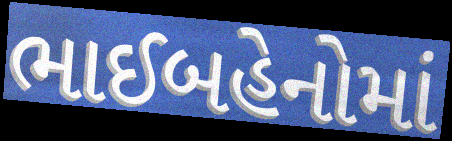
ભાઈબહેનોમાં